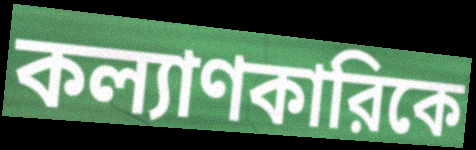
কল্যাণকারিকে